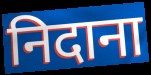
निदाना